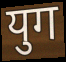
युग